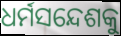
ଧର୍ମସନ୍ଦେଶକୁ